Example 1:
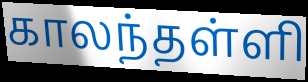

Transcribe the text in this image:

காலந்தள்ளி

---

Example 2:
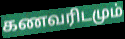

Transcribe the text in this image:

கணவரிடமும்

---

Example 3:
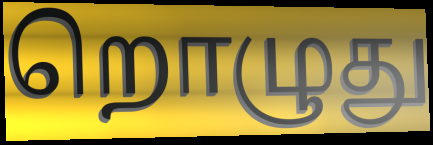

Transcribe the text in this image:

றொழுது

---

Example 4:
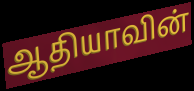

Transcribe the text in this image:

ஆதியாவின்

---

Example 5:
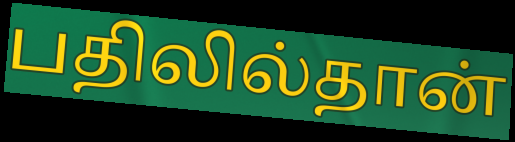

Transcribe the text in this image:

பதிலில்தான்